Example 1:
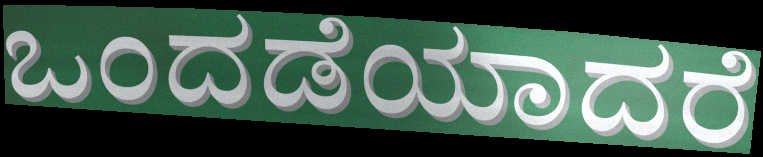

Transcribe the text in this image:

ಒಂದಡೆಯಾದರೆ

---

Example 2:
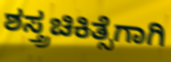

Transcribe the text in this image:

ಶಸ್ತ್ರಚಿಕಿತ್ಸೆಗಾಗಿ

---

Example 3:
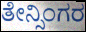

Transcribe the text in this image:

ತೇನ್ಸಿಂಗರ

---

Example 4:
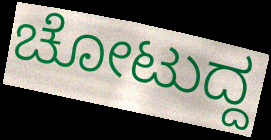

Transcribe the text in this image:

ಚೋಟುದ್ದ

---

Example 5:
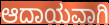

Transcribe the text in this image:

ಆದಾಯವಾಗಿ